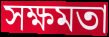
সক্ষমতা